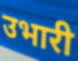
उभारी